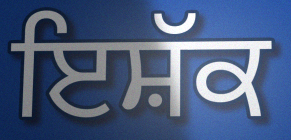
ਇਸ਼ੱਕ